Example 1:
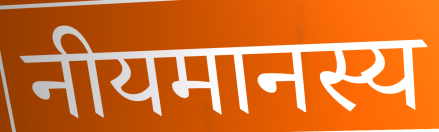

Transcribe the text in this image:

नीयमानस्य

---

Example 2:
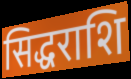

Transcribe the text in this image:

सिद्धराशि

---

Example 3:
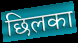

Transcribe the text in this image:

छिलका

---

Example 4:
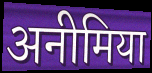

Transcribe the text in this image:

अनीमिया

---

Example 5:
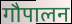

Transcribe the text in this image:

गौपालन